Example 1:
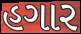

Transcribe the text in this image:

હગાર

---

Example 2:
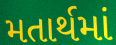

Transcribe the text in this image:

મતાર્થમાં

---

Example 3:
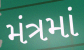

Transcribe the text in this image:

મંત્રમાં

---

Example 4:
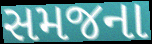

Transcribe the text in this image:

સમજના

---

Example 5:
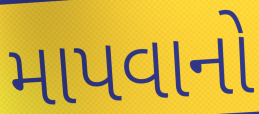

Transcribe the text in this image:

માપવાનો